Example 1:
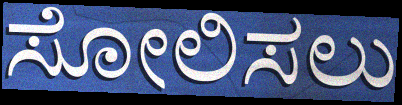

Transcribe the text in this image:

ಸೋಲಿಸಲು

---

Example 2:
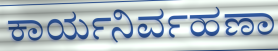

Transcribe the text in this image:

ಕಾರ್ಯನಿರ್ವಹಣಾ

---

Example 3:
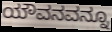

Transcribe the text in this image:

ಯೌವನವನ್ನೂ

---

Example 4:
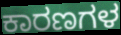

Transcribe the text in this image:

ಕಾರಣಗಳ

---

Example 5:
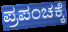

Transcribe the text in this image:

ಪ್ರಪಂಚಕ್ಕೆ